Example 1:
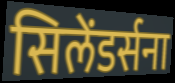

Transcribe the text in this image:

सिलेंडर्सना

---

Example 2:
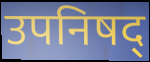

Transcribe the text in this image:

उपनिषद्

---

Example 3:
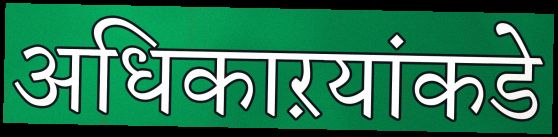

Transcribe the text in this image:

अधिकाऱयांकडे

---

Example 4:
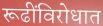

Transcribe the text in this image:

रूढींविरोधात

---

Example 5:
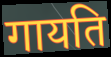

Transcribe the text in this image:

गायति